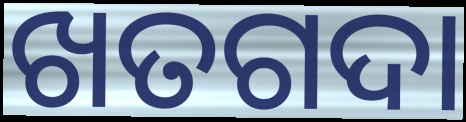
ଖତଗଦା